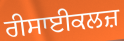
ਰੀਸਾਈਕਲਜ਼